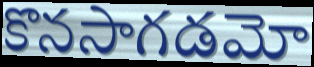
కొనసాగడమో